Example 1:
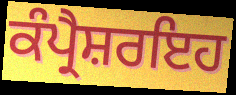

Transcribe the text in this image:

ਕੰਪ੍ਰੈਸ਼ਰਇਹ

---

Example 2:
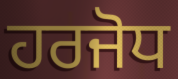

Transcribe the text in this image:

ਹਰਜੋਧ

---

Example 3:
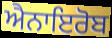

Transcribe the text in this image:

ਐਨਾਇਰੋਬ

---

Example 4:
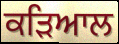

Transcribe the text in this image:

ਕੜਿਆਲ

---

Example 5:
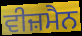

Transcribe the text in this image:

ਵੀਜ਼ਮੈਨ